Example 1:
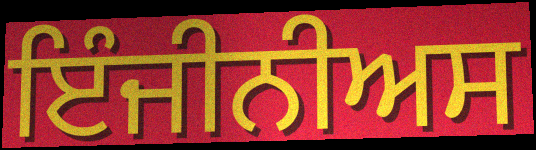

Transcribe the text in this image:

ਇੰਜੀਨੀਅਸ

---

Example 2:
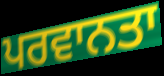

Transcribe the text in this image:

ਪਰਵਾਨਤਾ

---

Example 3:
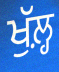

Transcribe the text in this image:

ਖੁੱਲ਼੍ਹ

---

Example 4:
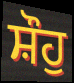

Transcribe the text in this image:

ਸ਼ੌਹੁ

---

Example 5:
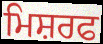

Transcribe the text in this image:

ਮਿਸ਼ਰਫ